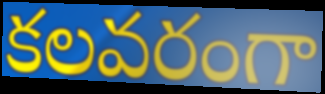
కలవరంగా